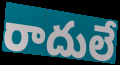
రాదులే